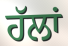
ਹੱਲਾਂ